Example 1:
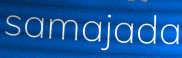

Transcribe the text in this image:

samajada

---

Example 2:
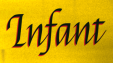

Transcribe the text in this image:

Infant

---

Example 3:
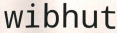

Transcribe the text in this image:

wibhut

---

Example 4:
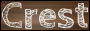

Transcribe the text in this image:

Crest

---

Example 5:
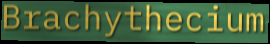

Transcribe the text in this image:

Brachythecium